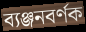
ব্যঞ্জনবৰ্ণক